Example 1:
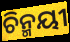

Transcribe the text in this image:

ଚିନ୍ମୟୀ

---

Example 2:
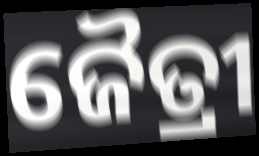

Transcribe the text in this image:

ଜୈତ୍ରୀ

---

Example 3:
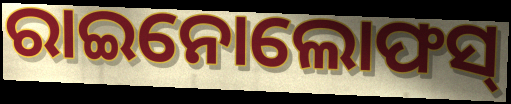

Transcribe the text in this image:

ରାଇନୋଲୋଫସ୍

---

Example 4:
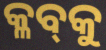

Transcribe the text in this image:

କ୍ଳବ୍‍କୁ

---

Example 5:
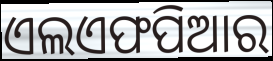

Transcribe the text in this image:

ଏଲଏଫପିଆର